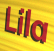
Lila